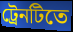
ট্রেনটিতে